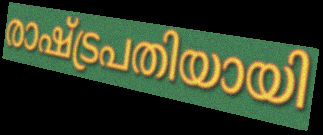
രാഷ്ട്രപതിയായി